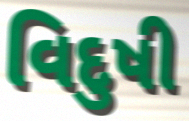
વિદુષી